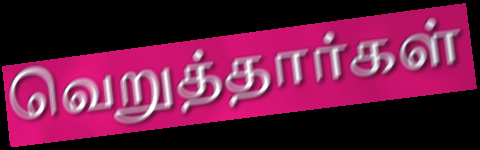
வெறுத்தார்கள்